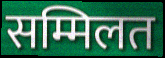
सम्मिलत